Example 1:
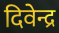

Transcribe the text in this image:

दिवेन्द्र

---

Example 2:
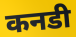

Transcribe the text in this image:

कनडी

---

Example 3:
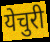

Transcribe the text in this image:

येचुरी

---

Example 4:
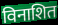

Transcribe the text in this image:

विनाशित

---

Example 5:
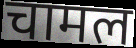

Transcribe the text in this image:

चामल